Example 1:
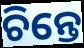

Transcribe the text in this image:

ଚିନ୍ତେ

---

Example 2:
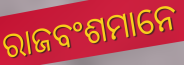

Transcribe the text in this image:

ରାଜବଂଶମାନେ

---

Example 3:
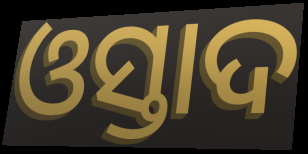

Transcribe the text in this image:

ଓସ୍ତାଦ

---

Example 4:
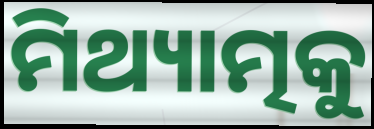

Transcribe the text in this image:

ମିଥ୍ୟାତ୍ମକୁ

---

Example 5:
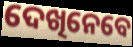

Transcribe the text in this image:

ଦେଖିନେବେ